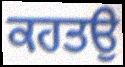
ਕਹਤਉ